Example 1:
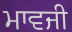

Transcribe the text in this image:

ਮਾਵਜੀ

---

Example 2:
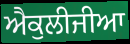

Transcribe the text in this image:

ਐਕੁਲੀਜੀਆ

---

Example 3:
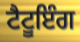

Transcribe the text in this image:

ਟੈਟੂਇੰਗ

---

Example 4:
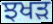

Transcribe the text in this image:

ਝਖੜ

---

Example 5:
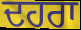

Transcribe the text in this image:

ਦਹਰਾ